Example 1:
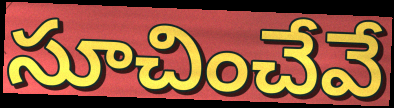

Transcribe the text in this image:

సూచించేవే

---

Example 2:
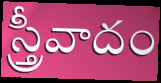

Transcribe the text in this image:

స్త్రీవాదం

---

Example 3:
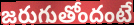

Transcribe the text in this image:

జరుగుతోందంటే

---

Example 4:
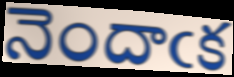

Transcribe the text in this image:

నెందాఁక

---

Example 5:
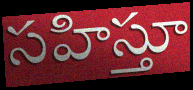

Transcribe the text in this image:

సహిస్తూ